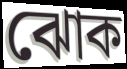
ঝোক